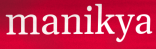
manikya